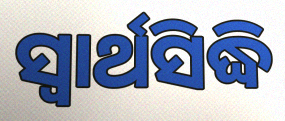
ସ୍ୱାର୍ଥସିଦ୍ଧି